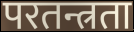
परतन्त्रता